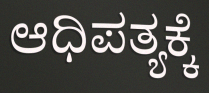
ಆಧಿಪತ್ಯಕ್ಕೆ